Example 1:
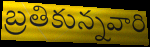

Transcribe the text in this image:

బ్రతికున్నవారి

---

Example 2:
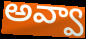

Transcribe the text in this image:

అవ్వా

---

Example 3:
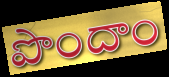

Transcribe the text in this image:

పొందాం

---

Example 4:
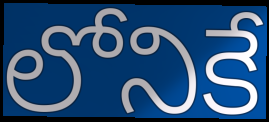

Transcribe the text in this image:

లోనికే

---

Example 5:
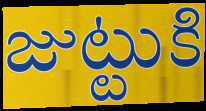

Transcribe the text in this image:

జుట్టుకి